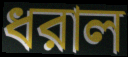
ধরাল